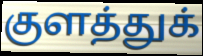
குளத்துக்